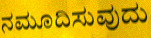
ನಮೂದಿಸುವುದು